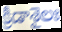
క్రీడాశైలః